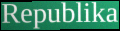
Republika